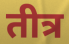
तीत्र